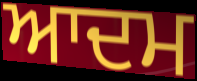
ਆਦਮ